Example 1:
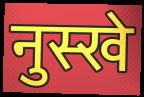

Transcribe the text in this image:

नुस्खे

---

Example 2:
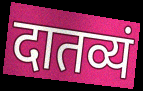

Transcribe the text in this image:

दातव्यं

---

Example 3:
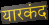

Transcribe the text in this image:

यारकंद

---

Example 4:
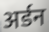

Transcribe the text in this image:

अर्डन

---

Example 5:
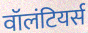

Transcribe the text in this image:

वॉलंटियर्स